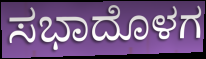
ಸಭಾದೊಳಗ